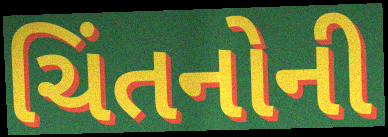
ચિંતનોની